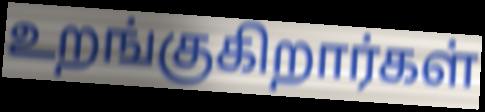
உறங்குகிறார்கள்